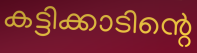
കട്ടിക്കാടിന്റെ